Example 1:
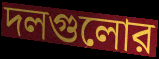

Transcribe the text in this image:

দলগুলোর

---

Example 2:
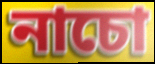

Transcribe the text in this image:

নাচো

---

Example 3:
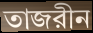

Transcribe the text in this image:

তাজরীন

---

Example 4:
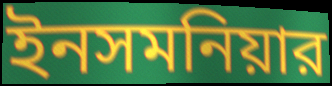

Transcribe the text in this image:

ইনসমনিয়ার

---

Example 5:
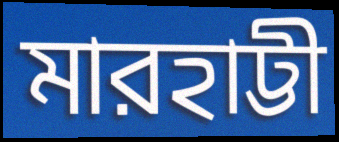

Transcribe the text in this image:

মারহাট্টী